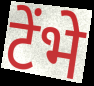
टेंभे